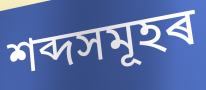
শব্দসমূহৰ